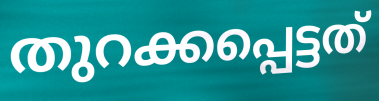
തുറക്കപ്പെട്ടത്